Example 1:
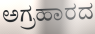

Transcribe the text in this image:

ಅಗ್ರಹಾರದ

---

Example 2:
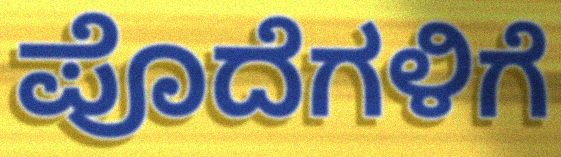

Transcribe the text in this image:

ಪೊದೆಗಳಿಗೆ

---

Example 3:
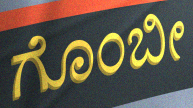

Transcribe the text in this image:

ಗೊಂಬೀ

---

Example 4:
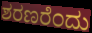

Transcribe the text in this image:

ಶರಣರೆಂದು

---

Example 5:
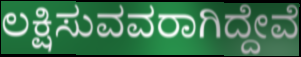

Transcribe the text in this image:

ಲಕ್ಷಿಸುವವರಾಗಿದ್ದೇವೆ